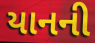
યાનની